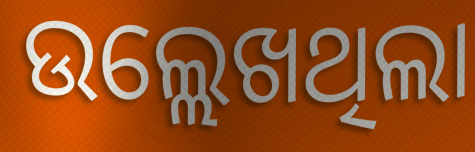
ଉଲ୍ଲେଖଥିଲା